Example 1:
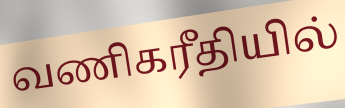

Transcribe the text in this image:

வணிகரீதியில்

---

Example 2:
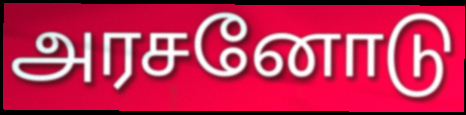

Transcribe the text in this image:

அரசனோடு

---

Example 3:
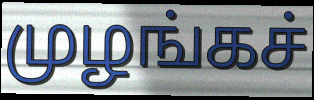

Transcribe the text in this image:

முழங்கச்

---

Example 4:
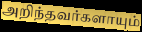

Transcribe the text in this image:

அறிந்தவர்களாயும்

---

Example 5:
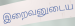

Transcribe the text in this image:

இறைவனுடைய